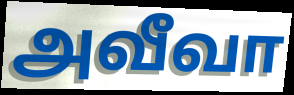
அவீவா